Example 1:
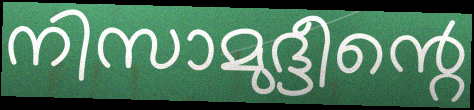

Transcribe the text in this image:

നിസാമുദ്ദീന്റെ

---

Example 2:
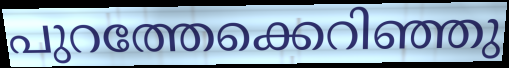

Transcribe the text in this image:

പുറത്തേക്കെറിഞ്ഞു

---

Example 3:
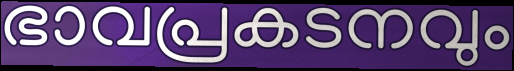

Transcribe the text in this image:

ഭാവപ്രകടനവും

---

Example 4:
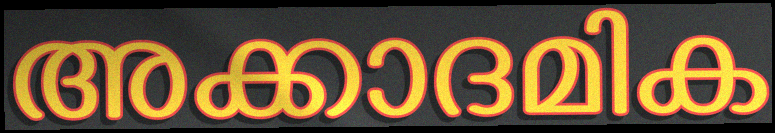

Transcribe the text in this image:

അക്കാദമിക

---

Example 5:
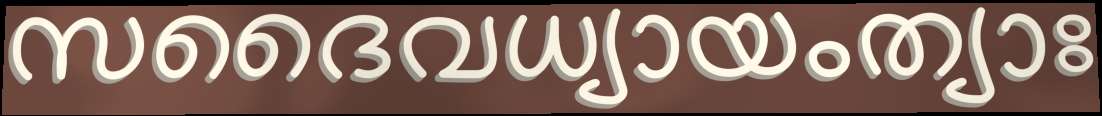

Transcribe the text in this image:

സദൈവധ്യായംത്യാഃ